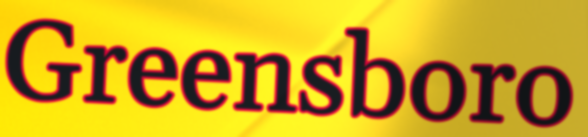
Greensboro